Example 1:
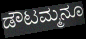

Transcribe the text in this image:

ಡೌಟಮ್ಮನೂ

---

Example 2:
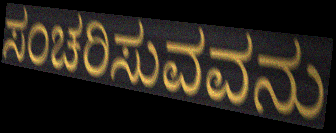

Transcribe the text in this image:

ಸಂಚರಿಸುವವನು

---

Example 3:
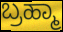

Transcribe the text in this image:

ಬ್ರಹ್ಮಾ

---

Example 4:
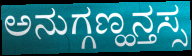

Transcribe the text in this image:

ಅನುಗ್ಗಣ್ಹನ್ತಸ್ಸ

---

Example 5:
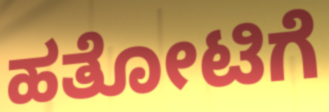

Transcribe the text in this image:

ಹತೋಟಿಗೆ